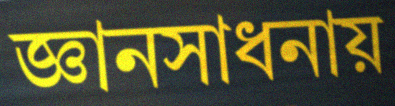
জ্ঞানসাধনায়